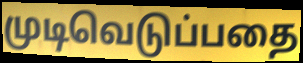
முடிவெடுப்பதை